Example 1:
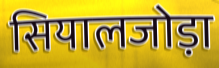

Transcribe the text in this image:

सियालजोड़ा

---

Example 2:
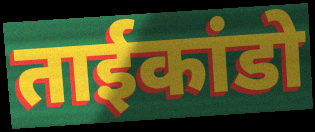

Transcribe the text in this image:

ताईकांडो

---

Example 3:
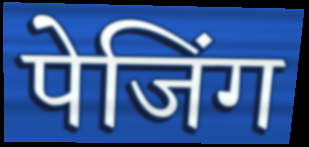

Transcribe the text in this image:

पेजिंग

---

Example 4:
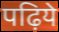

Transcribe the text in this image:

पढ़िये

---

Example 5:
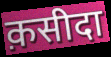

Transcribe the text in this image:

क़सीदा